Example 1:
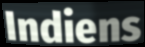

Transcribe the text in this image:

Indiens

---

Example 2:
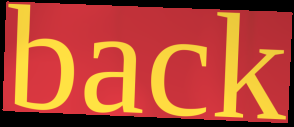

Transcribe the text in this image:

back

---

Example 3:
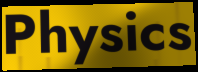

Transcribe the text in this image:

Physics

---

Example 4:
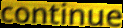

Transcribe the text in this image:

continue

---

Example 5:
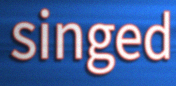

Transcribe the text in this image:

singed